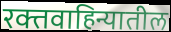
रक्तवाहिन्यातील